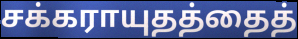
சக்கராயுதத்தைத்